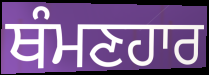
ਥੰਮਣਹਾਰ